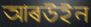
আৰউইন